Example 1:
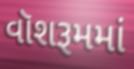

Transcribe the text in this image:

વૉશરૂમમાં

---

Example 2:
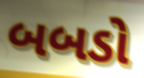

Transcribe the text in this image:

બબડો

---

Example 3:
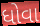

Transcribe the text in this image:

ધોવા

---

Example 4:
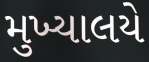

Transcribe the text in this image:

મુખ્યાલયે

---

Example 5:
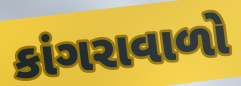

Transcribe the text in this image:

કાંગરાવાળો